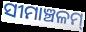
ସୀମାଞ୍ଚଳମ୍